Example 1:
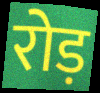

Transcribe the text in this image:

रोड़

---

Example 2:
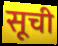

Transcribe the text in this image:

सूची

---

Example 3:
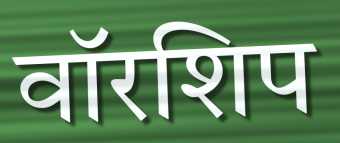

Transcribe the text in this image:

वॉरशिप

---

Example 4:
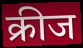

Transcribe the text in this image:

क्रीज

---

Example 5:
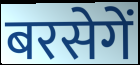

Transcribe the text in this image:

बरसेगें